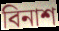
বিনাশ